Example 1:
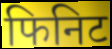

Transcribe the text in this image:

फिनिट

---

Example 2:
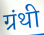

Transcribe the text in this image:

ग्रंथी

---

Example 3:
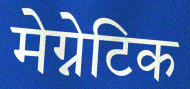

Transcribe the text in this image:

मेग्नेटिक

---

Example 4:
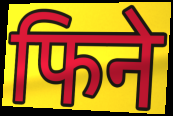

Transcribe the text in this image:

फिने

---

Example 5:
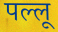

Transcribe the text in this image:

पल्लू